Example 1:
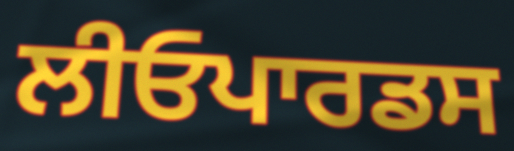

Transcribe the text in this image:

ਲੀਓਪਾਰਡਸ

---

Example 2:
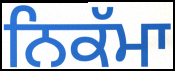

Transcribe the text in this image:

ਨਿਕੱਮਾ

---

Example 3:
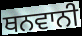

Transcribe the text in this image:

ਥਨਵਾਨੀ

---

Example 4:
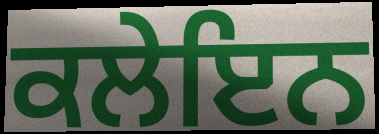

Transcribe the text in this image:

ਕਲੇਇਨ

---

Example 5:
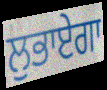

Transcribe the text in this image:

ਲੁਭਾਏਗਾ